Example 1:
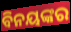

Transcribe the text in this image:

ବିନୟଙ୍କର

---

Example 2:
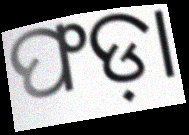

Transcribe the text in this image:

ଫଡ଼ା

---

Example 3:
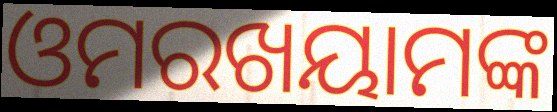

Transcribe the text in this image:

ଓମରଖୟାମଙ୍କ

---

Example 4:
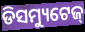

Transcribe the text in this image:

ଡିସମ୍ୟୁଟେଜ୍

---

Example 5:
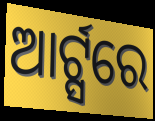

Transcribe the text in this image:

ଆର୍ଟ୍ସରେ